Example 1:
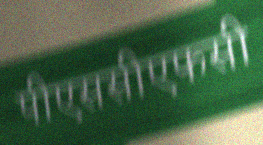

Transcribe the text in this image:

पीएससीएफसी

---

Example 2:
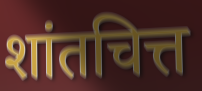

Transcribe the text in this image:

शांतचित्त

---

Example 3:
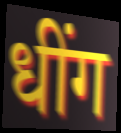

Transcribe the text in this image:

धींग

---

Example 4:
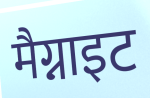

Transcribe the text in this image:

मैग्नाइट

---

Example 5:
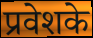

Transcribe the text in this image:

प्रवेशके